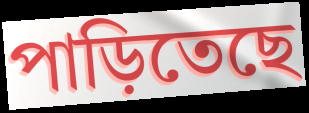
পাড়িতেছে